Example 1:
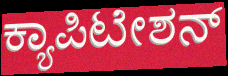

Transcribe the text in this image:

ಕ್ಯಾಪಿಟೇಶನ್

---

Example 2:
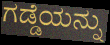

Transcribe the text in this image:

ಗಡ್ಡೆಯನ್ನು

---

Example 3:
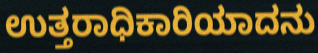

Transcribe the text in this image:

ಉತ್ತರಾಧಿಕಾರಿಯಾದನು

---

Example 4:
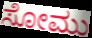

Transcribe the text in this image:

ಸೋಮು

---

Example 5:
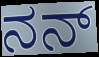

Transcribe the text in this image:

ನನ್